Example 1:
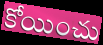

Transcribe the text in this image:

కోయించు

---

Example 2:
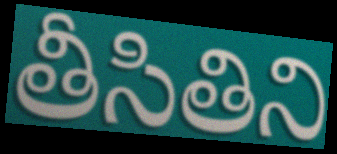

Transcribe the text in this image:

తీసితిని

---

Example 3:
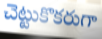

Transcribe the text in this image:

చెట్టుకొకరుగా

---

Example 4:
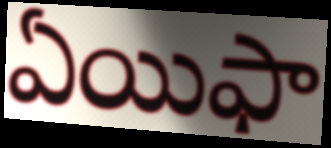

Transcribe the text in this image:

ఏయిఫా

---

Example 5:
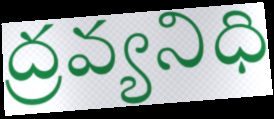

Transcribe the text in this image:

ద్రవ్యనిధి